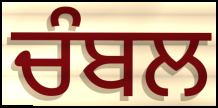
ਚੰਬਲ